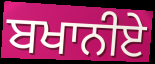
ਬਖਾਨੀਏ